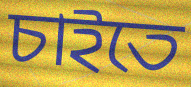
চাইতে